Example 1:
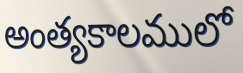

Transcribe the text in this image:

అంత్యకాలములో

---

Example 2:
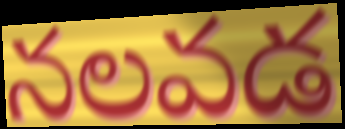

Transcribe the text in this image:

నలవడ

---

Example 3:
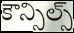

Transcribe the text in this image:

కౌన్సిల్స్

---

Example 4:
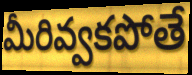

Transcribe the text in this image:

మీరివ్వకపోతే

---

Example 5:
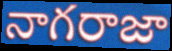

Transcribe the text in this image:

నాగరాజా